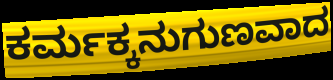
ಕರ್ಮಕ್ಕನುಗುಣವಾದ